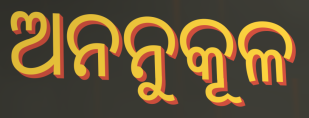
ଅନନୁକୂଳ